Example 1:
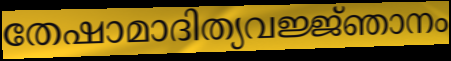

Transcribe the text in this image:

തേഷാമാദിത്യവജ്ജ്ഞാനം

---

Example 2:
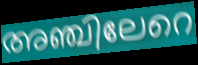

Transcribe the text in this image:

അഞ്ചിലേറെ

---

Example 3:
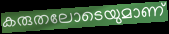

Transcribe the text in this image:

കരുതലോടെയുമാണ്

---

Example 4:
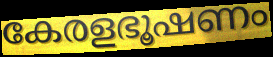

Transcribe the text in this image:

കേരളഭൂഷണം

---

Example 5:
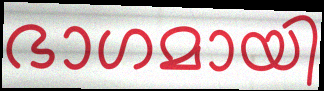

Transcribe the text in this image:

ഭാഗമായി